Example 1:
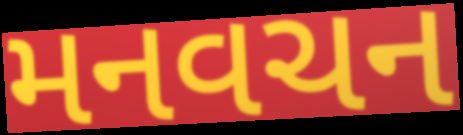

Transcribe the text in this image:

મનવચન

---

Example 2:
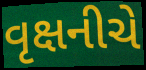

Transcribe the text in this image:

વૃક્ષનીચે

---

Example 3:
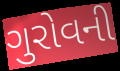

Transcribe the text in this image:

ગુરોવની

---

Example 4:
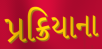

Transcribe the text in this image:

પ્રક્રિયાના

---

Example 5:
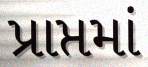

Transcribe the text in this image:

પ્રાપ્તમાં